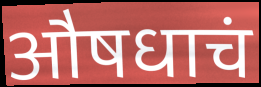
औषधाचं